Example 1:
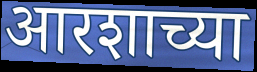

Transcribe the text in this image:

आरशाच्या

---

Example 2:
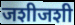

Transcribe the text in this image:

जशीजशी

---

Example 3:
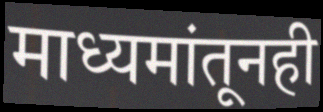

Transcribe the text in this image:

माध्यमांतूनही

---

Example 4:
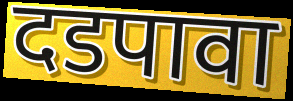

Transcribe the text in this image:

दडपावा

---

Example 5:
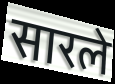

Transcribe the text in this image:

सारले